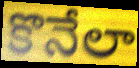
కొనేలా